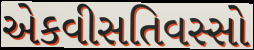
એકવીસતિવસ્સો